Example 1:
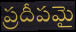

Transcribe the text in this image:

ప్రదీపమై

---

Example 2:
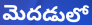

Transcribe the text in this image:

మెదడులో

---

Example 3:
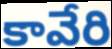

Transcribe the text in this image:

కావేరి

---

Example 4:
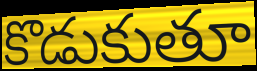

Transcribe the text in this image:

కొడుకుతూ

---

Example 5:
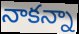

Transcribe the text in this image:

నాకన్నా